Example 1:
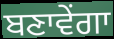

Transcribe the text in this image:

ਬਣਾਵੇਂਗਾ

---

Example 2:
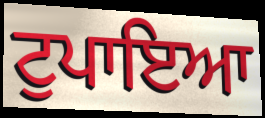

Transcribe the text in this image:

ਟੁਪਾਇਆ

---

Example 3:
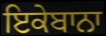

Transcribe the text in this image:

ਇਕੇਬਾਨਾ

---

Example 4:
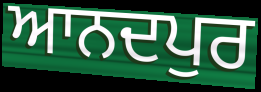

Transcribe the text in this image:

ਆਨਦਪੁਰ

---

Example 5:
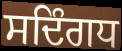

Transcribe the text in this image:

ਸਦਿੰਗਧ